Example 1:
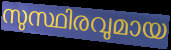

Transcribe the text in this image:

സുസ്ഥിരവുമായ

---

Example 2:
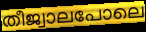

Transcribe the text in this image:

തീജ്വാലപോലെ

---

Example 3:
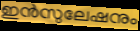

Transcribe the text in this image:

ഇൻസുലേഷനും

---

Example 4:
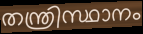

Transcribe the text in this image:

തന്ത്രിസ്ഥാനം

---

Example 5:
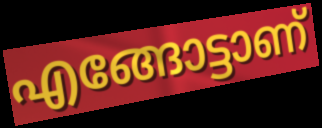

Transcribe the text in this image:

എങ്ങോട്ടാണ്